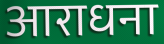
आराधना